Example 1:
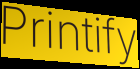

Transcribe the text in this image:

Printify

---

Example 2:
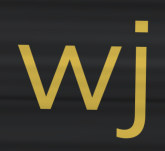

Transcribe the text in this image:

wj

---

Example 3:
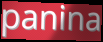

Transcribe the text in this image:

panina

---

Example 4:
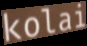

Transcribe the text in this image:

kolai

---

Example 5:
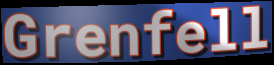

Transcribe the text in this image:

Grenfell